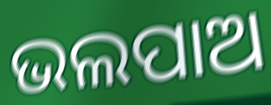
ଭଲପାଅ